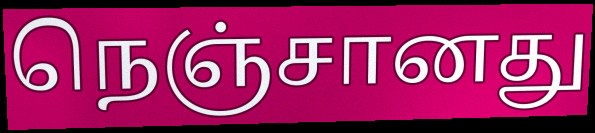
நெஞ்சானது